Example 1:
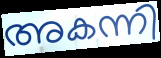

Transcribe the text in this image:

അകന്നി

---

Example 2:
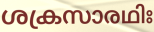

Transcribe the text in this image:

ശക്രസാരഥിഃ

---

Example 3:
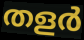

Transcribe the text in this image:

തളർ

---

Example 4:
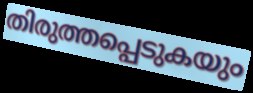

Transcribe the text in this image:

തിരുത്തപ്പെടുകയും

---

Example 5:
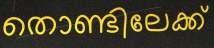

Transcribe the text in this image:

തൊണ്ടിലേക്ക്